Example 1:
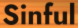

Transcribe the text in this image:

Sinful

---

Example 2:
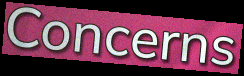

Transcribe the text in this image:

Concerns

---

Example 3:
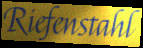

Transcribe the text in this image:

Riefenstahl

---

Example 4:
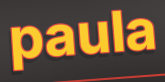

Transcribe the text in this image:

paula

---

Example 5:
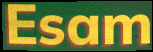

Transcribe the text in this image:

Esam